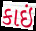
કાઇં